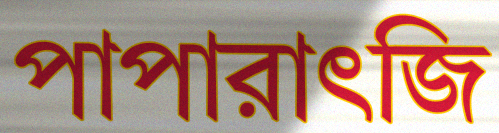
পাপারাৎজি